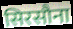
सिरसौना